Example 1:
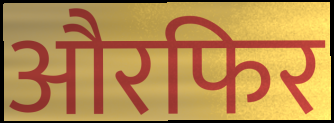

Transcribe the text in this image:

औरफिर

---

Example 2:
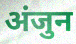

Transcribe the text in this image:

अंजुन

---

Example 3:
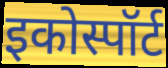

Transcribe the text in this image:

इकोस्पॉर्ट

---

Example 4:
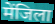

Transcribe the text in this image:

मेंजिला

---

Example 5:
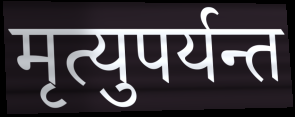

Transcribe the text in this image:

मृत्युपर्यन्त